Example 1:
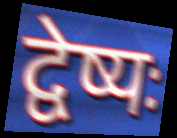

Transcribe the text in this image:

द्वेष्यः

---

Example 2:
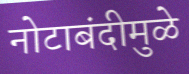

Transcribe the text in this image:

नोटाबंदीमुळे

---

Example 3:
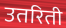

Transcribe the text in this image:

उतरिती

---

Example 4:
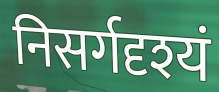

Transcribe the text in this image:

निसर्गदृश्यं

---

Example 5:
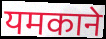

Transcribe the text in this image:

यमकाने